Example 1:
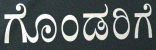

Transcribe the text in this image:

ಗೊಂಡರಿಗೆ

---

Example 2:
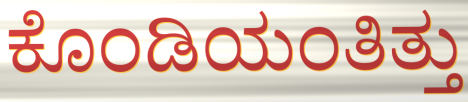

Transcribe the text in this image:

ಕೊಂಡಿಯಂತಿತ್ತು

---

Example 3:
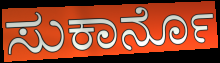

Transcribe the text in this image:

ಸುಕಾರ್ನೊ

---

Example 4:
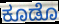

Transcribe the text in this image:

ಕೂಡೊ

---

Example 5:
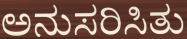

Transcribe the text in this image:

ಅನುಸರಿಸಿತು